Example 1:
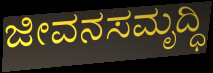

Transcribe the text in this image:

ಜೀವನಸಮೃದ್ಧಿ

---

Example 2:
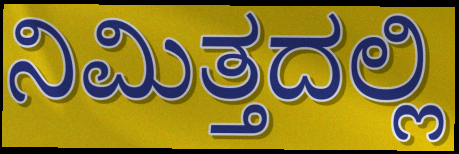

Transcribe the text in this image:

ನಿಮಿತ್ತದಲ್ಲಿ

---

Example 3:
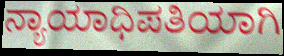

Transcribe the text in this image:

ನ್ಯಾಯಾಧಿಪತಿಯಾಗಿ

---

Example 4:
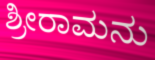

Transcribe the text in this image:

ಶ್ರೀರಾಮನು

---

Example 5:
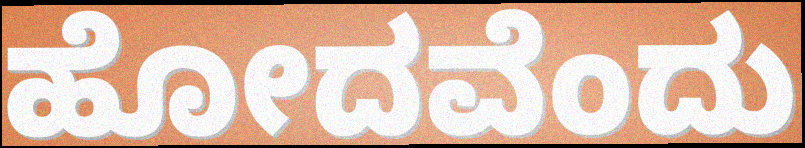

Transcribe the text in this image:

ಹೋದವೆಂದು